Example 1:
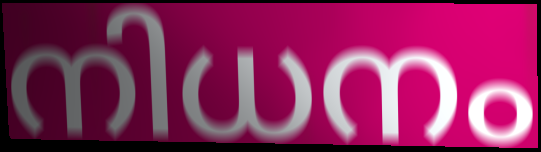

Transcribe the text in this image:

നിധനം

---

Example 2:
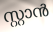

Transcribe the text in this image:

സ്റ്റാൻ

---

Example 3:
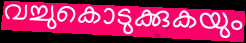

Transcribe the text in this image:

വച്ചുകൊടുക്കുകയും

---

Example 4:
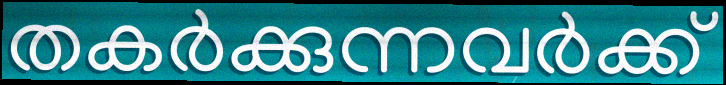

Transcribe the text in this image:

തകർക്കുന്നവർക്ക്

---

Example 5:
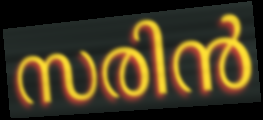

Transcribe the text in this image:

സരിൻ